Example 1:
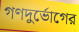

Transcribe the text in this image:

গণদুর্ভোগের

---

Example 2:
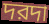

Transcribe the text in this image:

দরদা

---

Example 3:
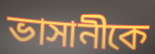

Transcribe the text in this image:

ভাসানীকে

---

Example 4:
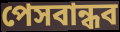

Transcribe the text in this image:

পেসবান্ধব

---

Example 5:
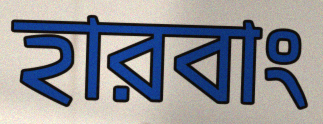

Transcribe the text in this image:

হারবাং